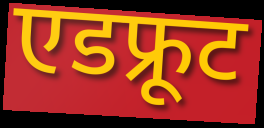
एडफ्रूट